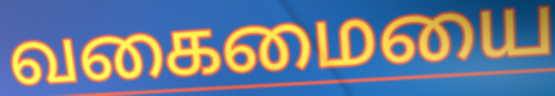
வகைமையை